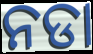
ନଡା